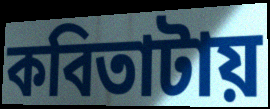
কবিতাটায়